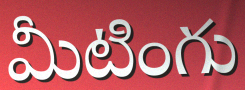
మీటింగు